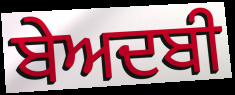
ਬੇਅਦਬੀ